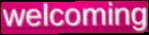
welcoming